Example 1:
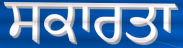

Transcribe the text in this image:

ਸਕਾਰਤਾ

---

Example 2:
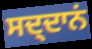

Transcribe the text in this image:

ਸਦ੍ਦਾਨਂ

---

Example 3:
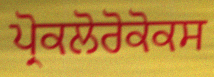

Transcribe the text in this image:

ਪ੍ਰੋਕਲੋਰੋਕੋਕਸ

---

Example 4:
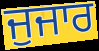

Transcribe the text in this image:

ਜੁਜਾਰ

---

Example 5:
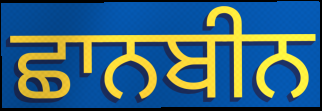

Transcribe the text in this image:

ਛਾਨਬੀਨ